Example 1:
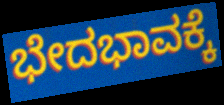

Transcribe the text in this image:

ಭೇದಭಾವಕ್ಕೆ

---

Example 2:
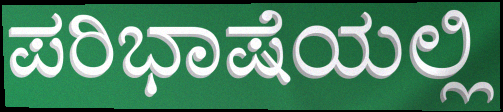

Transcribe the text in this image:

ಪರಿಭಾಷೆಯಲ್ಲಿ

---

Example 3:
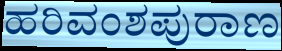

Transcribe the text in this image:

ಹರಿವಂಶಪುರಾಣ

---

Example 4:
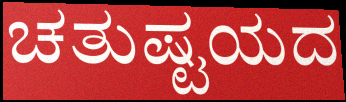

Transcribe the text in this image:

ಚತುಷ್ಟಯದ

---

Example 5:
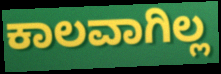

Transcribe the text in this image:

ಕಾಲವಾಗಿಲ್ಲ